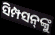
ସିମ୍ପସନ୍‍ଙ୍କୁ